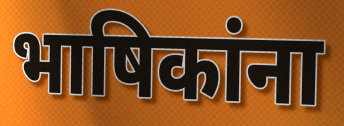
भाषिकांना